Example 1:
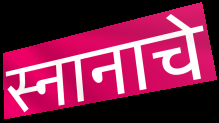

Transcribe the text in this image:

स्नानाचे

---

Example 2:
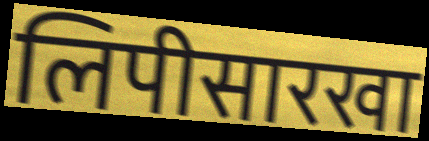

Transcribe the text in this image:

लिपीसारखा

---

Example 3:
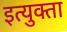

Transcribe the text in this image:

इत्युक्ता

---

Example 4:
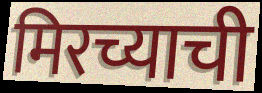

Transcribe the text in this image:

मिरच्याची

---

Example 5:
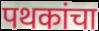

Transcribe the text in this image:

पथकांचा